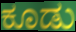
ಕೂಡು